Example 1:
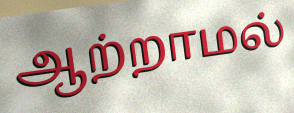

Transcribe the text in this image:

ஆற்றாமல்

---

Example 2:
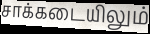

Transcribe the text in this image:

சாக்கடையிலும்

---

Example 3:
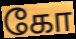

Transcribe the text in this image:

கோ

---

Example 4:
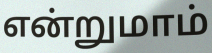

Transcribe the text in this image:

என்றுமாம்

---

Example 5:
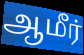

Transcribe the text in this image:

ஆமீர்